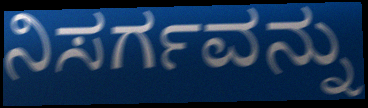
ನಿಸರ್ಗವನ್ನು